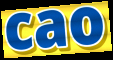
cao